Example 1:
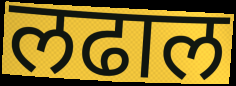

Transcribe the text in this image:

लढाल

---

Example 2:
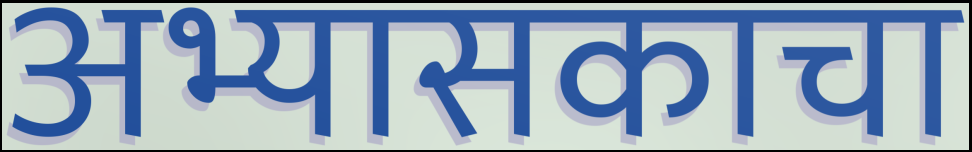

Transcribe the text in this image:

अभ्यासकाचा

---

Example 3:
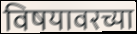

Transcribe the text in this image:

विषयावरच्या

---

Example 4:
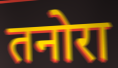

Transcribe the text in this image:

तनोरा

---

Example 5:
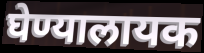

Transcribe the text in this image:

घेण्यालायक